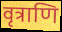
वृत्राणि